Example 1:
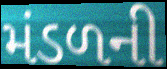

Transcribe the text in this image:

મંડળની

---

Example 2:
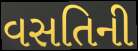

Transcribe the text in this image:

વસતિની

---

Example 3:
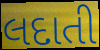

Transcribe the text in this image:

લદાતી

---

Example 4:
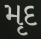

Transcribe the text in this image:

મૃદ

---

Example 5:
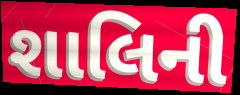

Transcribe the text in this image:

શાલિની